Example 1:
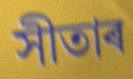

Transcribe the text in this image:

সীতাৰ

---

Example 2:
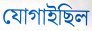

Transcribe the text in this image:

যোগাইছিল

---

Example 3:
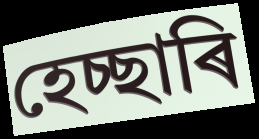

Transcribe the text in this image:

হেচ্ছাৰি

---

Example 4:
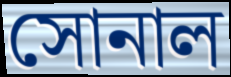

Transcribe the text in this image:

সোনাল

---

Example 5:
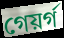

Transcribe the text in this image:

গেয়ৰ্গ